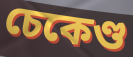
চেকেণ্ড